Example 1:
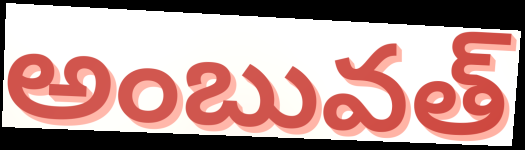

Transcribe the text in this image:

అంబువత్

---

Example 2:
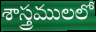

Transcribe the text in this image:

శాస్త్రములలో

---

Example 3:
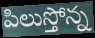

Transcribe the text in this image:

పిలుస్తోన్న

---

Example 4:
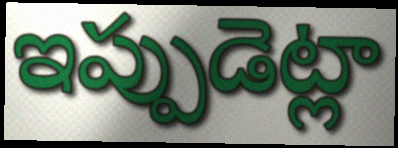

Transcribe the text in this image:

ఇప్పుడెట్లా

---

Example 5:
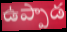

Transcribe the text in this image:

ఉప్పాడ